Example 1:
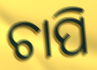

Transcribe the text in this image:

ଚାପି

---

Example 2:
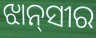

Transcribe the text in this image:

ଝାନ୍‌ସୀର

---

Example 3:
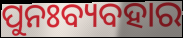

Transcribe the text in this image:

ପୁନଃବ୍ୟବହାର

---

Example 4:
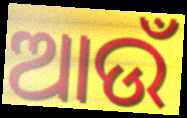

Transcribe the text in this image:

ଆଉଁ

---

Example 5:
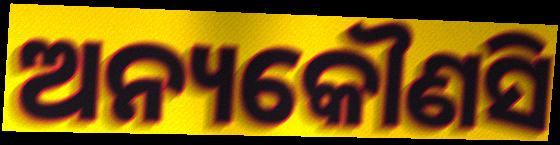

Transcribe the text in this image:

ଅନ୍ୟକୌଣସି